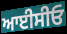
ਆਈਸੀਓ